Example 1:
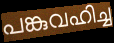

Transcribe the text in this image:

പങ്കുവഹിച്ച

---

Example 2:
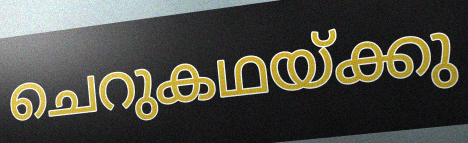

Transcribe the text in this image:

ചെറുകഥയ്ക്കു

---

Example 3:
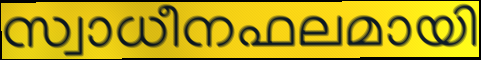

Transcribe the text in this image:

സ്വാധീനഫലമായി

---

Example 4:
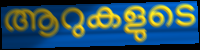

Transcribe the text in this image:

ആറുകളുടെ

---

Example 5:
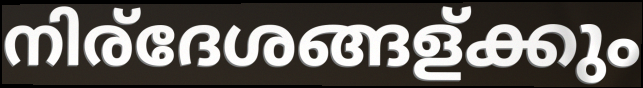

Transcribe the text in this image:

നിര്ദേശങ്ങള്ക്കും